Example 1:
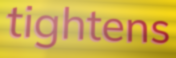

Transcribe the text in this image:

tightens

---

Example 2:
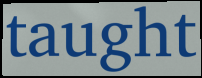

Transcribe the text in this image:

taught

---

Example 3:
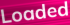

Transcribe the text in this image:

Loaded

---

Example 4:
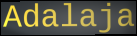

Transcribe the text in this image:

Adalaja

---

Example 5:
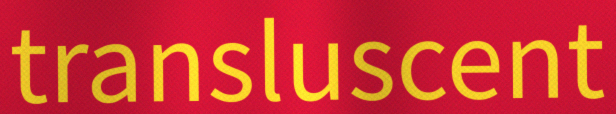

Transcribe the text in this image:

transluscent